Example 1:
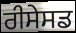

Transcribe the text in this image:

ਰੀਸੇਸਡ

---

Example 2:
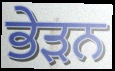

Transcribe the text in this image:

ਭੇੜਨ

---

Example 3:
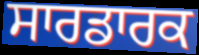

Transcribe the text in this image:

ਸਾਰਡਾਰਕ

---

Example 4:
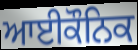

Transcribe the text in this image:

ਆਈਕੌਨਿਕ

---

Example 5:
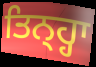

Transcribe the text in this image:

ਤਿਨ੍ਹ੍ਹਾ